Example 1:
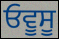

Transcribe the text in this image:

ਓਵੂਸੂ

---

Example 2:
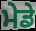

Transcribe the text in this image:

ਮੇਡੇ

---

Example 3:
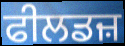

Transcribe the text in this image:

ਫੀਲਡਜ਼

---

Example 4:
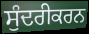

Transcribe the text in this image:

ਸੁੰਦਰੀਕਰਨ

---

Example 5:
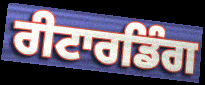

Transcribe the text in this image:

ਰੀਟਾਰਡਿੰਗ